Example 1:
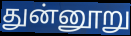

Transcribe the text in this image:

துன்னூறு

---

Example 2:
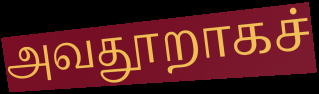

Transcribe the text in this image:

அவதூறாகச்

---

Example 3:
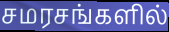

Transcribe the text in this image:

சமரசங்களில்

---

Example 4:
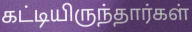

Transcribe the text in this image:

கட்டியிருந்தார்கள்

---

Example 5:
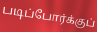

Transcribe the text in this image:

படிப்போர்க்குப்